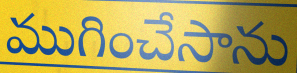
ముగించేసాను